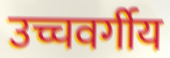
उच्चवर्गीय